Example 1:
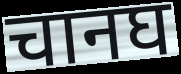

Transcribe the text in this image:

चानघ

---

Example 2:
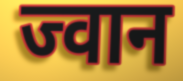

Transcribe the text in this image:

ज्वान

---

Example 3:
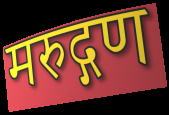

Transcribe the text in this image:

मरुद्गण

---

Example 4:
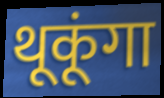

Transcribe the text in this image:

थूकूंगा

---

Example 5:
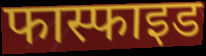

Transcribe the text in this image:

फास्फाइड